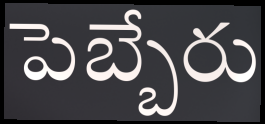
పెబ్బేరు